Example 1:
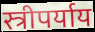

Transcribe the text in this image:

स्त्रीपर्याय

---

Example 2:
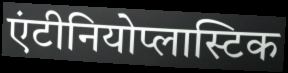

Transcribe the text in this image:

एंटीनियोप्लास्टिक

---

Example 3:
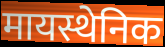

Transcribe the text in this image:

मायस्थेनिक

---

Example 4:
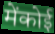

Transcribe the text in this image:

मेंकोई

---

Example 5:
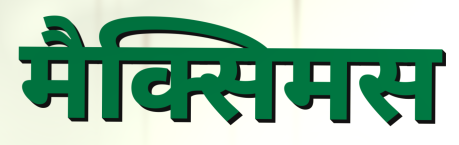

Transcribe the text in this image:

मैक्सिमस